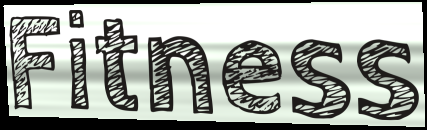
Fitness